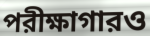
পরীক্ষাগারও